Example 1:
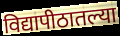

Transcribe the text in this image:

विद्यापीठातल्या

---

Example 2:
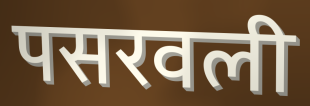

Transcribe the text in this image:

पसरवली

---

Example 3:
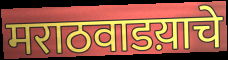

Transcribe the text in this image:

मराठवाडय़ाचे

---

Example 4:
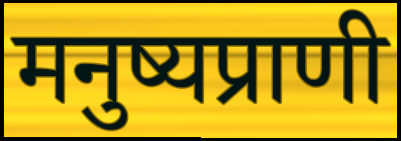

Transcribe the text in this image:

मनुष्यप्राणी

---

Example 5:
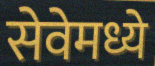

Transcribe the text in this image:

सेवेमध्ये